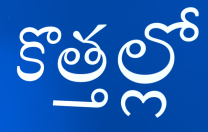
కొత్తల్లో